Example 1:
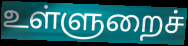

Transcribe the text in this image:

உள்ளுறைச்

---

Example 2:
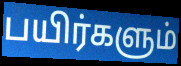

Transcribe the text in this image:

பயிர்களும்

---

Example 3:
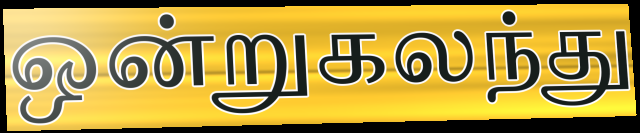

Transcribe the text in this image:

ஒன்றுகலந்து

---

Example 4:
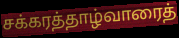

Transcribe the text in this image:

சக்கரத்தாழ்வாரைத்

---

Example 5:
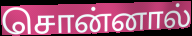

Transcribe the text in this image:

சொன்னால்